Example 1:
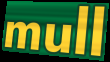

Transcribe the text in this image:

mull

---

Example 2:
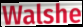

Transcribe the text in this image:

Walshe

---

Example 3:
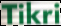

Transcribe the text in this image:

Tikri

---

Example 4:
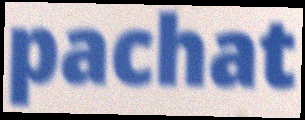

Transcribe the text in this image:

pachat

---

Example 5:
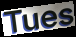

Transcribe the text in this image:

Tues